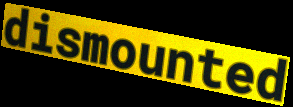
dismounted